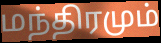
மந்திரமும்